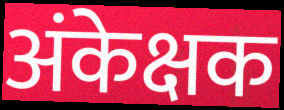
अंकेक्षक